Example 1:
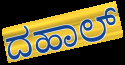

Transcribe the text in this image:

ದಹಾಲ್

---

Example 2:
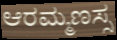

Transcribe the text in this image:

ಆರಮ್ಮಣಸ್ಸ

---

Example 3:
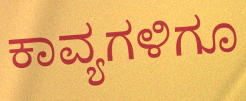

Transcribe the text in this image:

ಕಾವ್ಯಗಳಿಗೂ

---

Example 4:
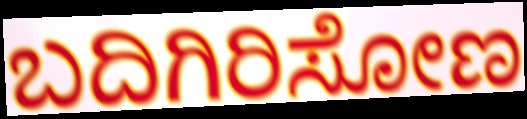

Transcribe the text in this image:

ಬದಿಗಿರಿಸೋಣ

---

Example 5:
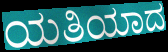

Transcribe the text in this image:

ಯತಿಯಾದ